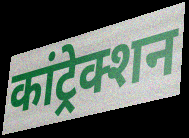
कांट्रेक्शन